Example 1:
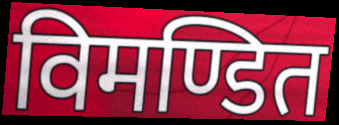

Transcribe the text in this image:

विमण्डित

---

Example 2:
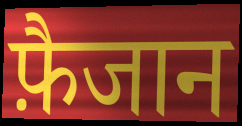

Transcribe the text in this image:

फ़ैजान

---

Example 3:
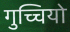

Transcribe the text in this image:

गुच्चियो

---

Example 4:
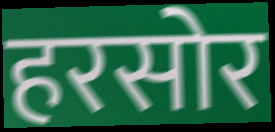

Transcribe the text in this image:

हरसोर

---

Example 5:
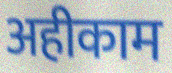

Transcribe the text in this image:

अहीकाम